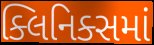
ક્લિનિક્સમાં